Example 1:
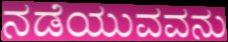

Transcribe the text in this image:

ನಡೆಯುವವನು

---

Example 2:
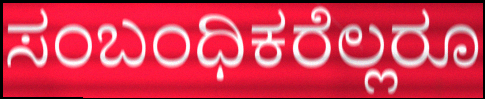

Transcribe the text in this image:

ಸಂಬಂಧಿಕರೆಲ್ಲರೂ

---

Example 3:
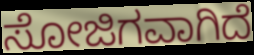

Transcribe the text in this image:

ಸೋಜಿಗವಾಗಿದೆ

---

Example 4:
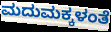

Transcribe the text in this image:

ಮದುಮಕ್ಕಳಂತೆ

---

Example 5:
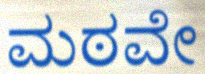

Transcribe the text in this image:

ಮಠವೇ